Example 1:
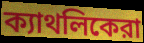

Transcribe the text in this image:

ক্যাথলিকেরা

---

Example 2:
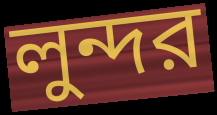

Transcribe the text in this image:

লুন্দর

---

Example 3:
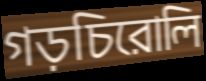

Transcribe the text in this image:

গড়চিরোলি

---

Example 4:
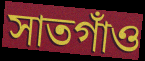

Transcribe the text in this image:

সাতগাঁও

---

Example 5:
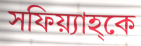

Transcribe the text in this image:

সফিয়্যাহ্কে